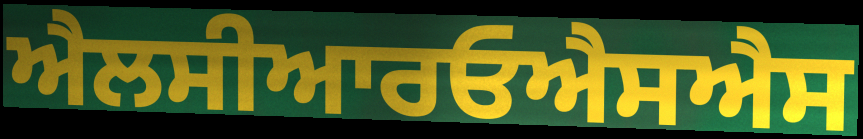
ਐਲਸੀਆਰਓਐਸਐਸ